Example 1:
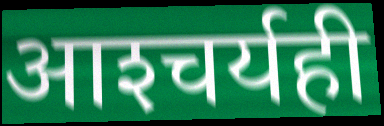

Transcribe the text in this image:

आश्‍चर्यही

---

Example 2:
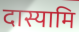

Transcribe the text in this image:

दास्यामि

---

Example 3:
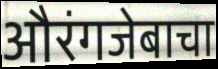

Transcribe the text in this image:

औरंगजेबाचा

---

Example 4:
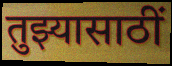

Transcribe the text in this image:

तुझ्यासाठीं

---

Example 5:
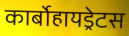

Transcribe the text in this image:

कार्बोहायड्रेटस